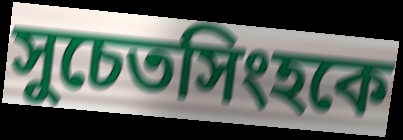
সুচেতসিংহকে